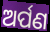
ଅର୍ପଣ